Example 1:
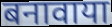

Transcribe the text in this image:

बनावाया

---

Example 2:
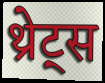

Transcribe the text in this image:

थ्रेट्स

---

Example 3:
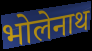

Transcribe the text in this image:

भोलेनाथ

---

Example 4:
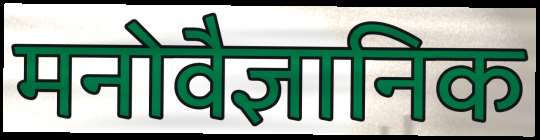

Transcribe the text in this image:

मनोवैज्ञानिक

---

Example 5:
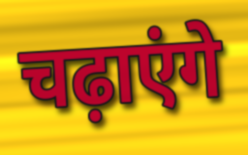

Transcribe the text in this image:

चढ़ाएंगे